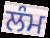
ਲੰਮ